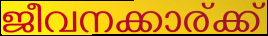
ജീവനക്കാര്ക്ക്